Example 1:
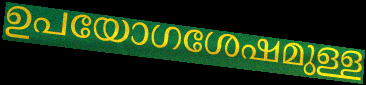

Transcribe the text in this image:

ഉപയോഗശേഷമുള്ള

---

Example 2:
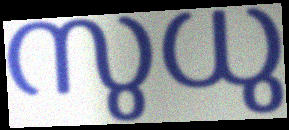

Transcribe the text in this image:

സുധു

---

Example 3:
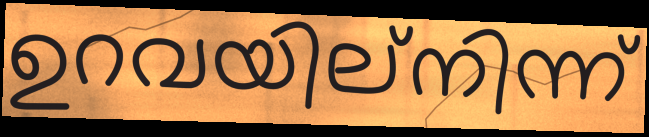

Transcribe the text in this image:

ഉറവയില്നിന്ന്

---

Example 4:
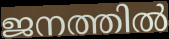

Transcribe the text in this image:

ജനത്തിൽ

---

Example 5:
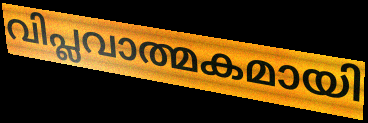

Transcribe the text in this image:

വിപ്ലവാത്മകമായി